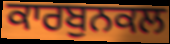
ਕਾਰਬੁਨਕਲ